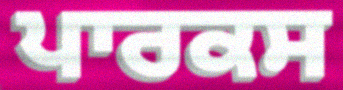
ਪਾਰਕਸ